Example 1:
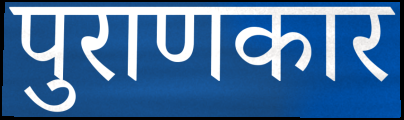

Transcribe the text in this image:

पुराणकार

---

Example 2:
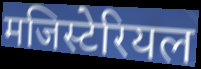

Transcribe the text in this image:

मजिस्टेरियल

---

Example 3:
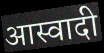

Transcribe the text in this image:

आस्वादी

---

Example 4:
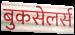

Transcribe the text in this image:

बुकसेलर्स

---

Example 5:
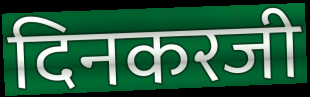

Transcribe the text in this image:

दिनकरजी